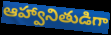
ఆహ్వానితుడిగా